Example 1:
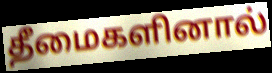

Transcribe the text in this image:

தீமைகளினால்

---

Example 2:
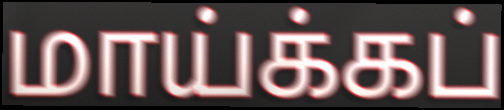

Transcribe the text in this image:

மாய்க்கப்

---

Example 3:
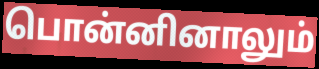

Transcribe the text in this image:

பொன்னினாலும்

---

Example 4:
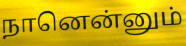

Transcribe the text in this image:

நானென்னும்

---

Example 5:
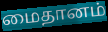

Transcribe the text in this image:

மைதானம்